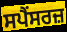
ਸਪੈਂਸਰਜ਼